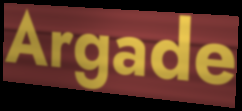
Argade